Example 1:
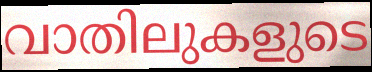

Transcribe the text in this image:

വാതിലുകളുടെ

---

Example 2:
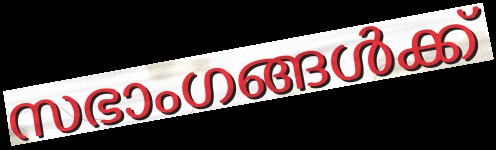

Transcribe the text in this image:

സഭാംഗങ്ങൾക്ക്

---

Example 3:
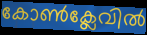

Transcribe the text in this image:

കോൺക്ലേവിൽ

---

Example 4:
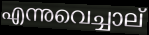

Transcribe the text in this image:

എന്നുവെച്ചാല്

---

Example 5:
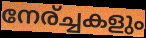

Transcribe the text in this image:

നേര്ച്ചകളും